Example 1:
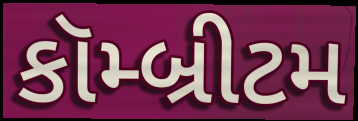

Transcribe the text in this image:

કૉમ્બ્રીટમ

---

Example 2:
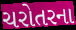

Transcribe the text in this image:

ચરોતરના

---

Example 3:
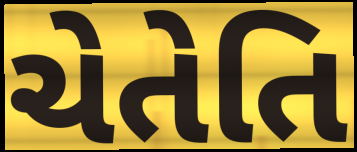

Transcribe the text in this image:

ચેતેતિ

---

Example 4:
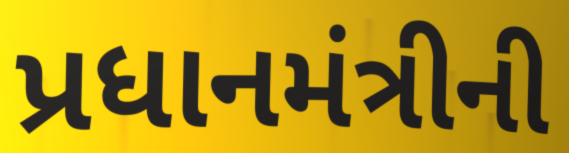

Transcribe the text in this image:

પ્રધાનમંત્રીની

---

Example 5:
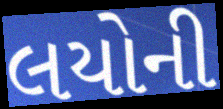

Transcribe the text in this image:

લયોની